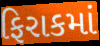
ફિરાકમાં